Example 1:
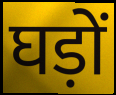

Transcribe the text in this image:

घड़ों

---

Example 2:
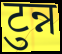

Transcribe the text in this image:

टुन्न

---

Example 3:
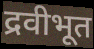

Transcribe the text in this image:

द्रवीभूत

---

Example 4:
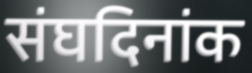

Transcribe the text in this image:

संघदिनांक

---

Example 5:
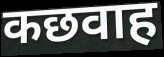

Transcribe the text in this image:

कछवाह